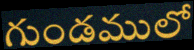
గుండములో